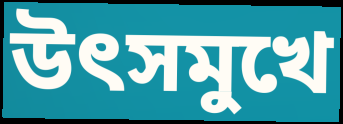
উৎসমুখে